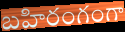
బహిరంగంగా